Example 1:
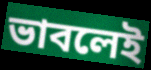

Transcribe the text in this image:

ভাবলেই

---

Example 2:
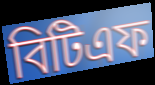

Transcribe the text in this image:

বিটিএফ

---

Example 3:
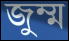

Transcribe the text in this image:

জুম্ম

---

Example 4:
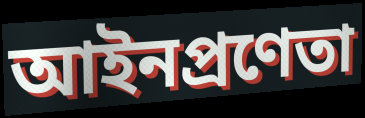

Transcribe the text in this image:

আইনপ্রণেতা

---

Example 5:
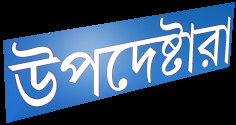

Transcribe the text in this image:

উপদেষ্টারা